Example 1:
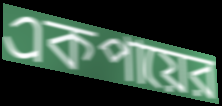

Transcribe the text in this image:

একপায়ের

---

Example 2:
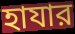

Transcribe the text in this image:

হাযার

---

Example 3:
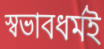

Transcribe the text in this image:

স্বভাবধর্মই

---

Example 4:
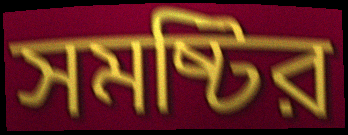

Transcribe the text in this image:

সমষ্টির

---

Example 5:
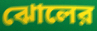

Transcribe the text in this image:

ঝোলের